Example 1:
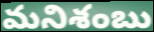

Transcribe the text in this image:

మనిశంబు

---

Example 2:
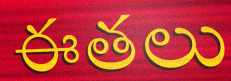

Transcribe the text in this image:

ఈతలు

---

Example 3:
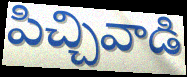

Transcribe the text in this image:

పిచ్చివాడి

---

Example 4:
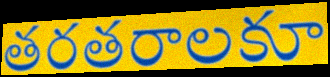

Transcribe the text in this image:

తరతరాలకూ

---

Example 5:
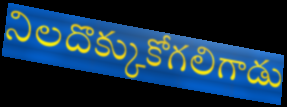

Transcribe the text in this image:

నిలదొక్కుకోగలిగాడు